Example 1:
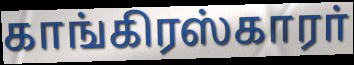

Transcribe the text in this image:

காங்கிரஸ்காரர்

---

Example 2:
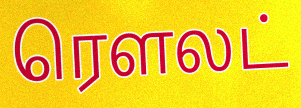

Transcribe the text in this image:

ரௌலட்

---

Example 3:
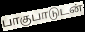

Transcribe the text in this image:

பாகுபாடுடன்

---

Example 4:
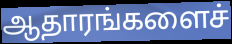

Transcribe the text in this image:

ஆதாரங்களைச்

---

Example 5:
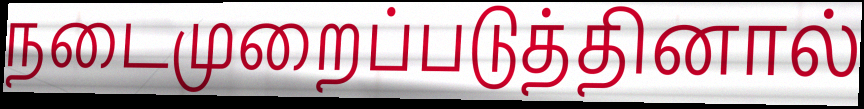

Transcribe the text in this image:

நடைமுறைப்படுத்தினால்